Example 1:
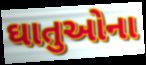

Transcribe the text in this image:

ઘાતુઓના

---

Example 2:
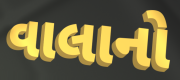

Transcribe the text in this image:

વાલાનો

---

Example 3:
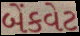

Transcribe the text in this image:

બેંકવેટ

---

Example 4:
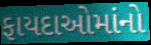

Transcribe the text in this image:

ફાયદાઓમાંનો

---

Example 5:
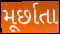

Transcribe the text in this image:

મૂર્છાતા